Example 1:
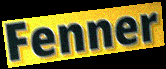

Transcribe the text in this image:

Fenner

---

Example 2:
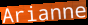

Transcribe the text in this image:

Arianne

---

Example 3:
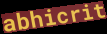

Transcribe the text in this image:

abhicrit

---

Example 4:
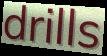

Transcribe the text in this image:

drills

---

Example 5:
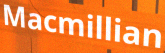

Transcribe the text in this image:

Macmillian